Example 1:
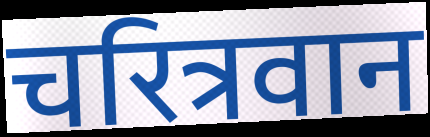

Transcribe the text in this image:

चरित्रवान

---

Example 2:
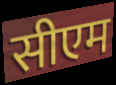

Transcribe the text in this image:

सीएम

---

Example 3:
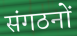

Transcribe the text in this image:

संगठनों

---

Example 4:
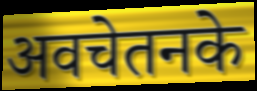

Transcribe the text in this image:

अवचेतनके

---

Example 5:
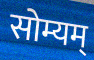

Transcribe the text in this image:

सोम्यम्